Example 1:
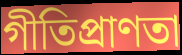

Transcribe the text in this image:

গীতিপ্রাণতা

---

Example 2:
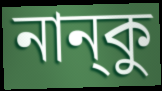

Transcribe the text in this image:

নান্‌কু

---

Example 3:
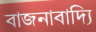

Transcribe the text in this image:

বাজনাবাদ্যি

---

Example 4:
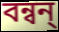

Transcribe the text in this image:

বন্বন্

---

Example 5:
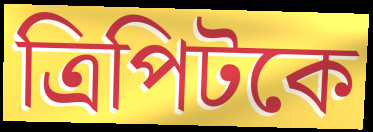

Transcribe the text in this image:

ত্রিপিটকে